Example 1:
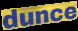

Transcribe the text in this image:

dunce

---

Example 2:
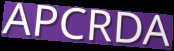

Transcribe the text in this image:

APCRDA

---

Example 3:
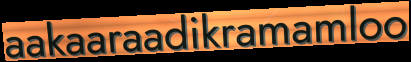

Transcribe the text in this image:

aakaaraadikramamloo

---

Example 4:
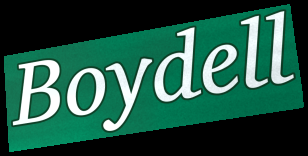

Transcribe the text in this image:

Boydell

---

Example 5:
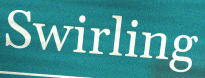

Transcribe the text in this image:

Swirling